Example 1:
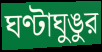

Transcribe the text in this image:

ঘণ্টাঘুঙুর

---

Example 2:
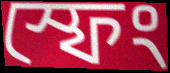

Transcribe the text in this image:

স্ফেং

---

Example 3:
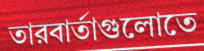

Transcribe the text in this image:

তারবার্তাগুলোতে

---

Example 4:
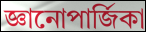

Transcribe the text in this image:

জ্ঞানোপার্জিকা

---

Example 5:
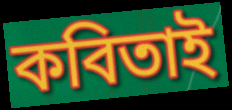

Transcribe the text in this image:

কবিতাই